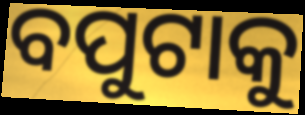
ବପୁଟାକୁ